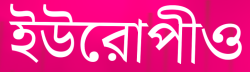
ইউরোপীও